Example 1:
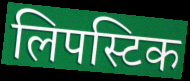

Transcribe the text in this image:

लिपस्टिक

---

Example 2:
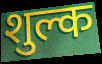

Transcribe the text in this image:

शुल्‍क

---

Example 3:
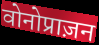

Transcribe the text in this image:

वोनोप्राज़न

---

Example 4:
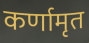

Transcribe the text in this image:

कर्णामृत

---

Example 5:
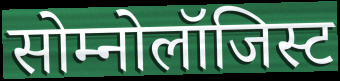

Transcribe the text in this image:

सोम्नोलॉजिस्ट